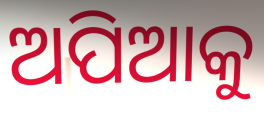
ଅପିଆକୁ